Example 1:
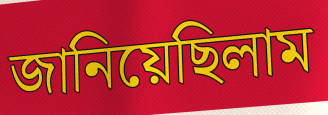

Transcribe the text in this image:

জানিয়েছিলাম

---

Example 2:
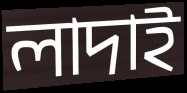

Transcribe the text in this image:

লাদাই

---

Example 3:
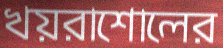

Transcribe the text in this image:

খয়রাশোলের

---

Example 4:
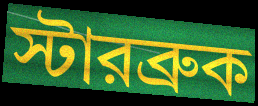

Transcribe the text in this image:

স্টারব্রুক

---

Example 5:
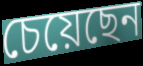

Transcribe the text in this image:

চেয়েছেন